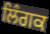
ਲਿੰਗਕ